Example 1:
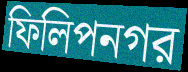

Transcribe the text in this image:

ফিলিপনগর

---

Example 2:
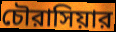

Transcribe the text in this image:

চৌরাসিয়ার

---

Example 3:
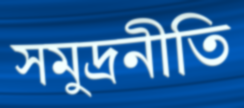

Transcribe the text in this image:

সমুদ্রনীতি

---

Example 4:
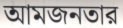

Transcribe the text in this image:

আমজনতার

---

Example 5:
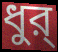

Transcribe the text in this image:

ধুর্